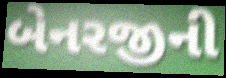
બેનરજીની